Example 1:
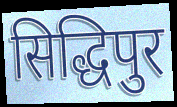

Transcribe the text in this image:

सिद्धिपुर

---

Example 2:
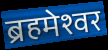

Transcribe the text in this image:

ब्रहमेश्वर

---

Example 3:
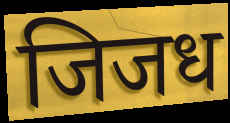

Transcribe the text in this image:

जिजध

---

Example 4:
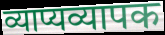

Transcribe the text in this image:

व्याप्यव्यापक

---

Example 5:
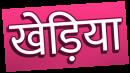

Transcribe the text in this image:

खेड़िया